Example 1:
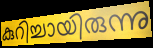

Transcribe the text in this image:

കുറിച്ചായിരുന്നു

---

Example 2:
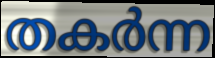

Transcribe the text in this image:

തകർന്ന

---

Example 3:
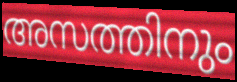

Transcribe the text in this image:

അസത്തിനും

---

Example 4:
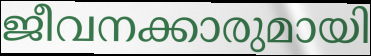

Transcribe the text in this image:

ജീവനക്കാരുമായി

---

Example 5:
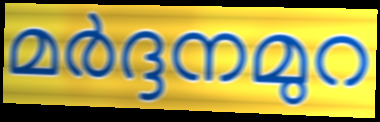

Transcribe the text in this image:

മർദ്ദനമുറ